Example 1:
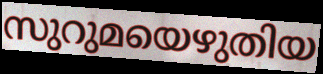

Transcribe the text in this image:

സുറുമയെഴുതിയ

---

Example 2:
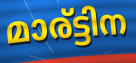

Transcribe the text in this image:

മാര്ട്ടിന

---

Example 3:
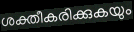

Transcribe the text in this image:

ശക്തീകരിക്കുകയും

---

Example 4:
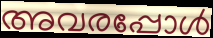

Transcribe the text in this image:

അവരപ്പോൾ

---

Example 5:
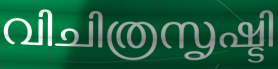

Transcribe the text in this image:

വിചിത്രസൃഷ്ടി